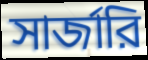
সার্জারি